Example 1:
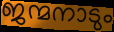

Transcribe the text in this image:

ജന്മനാടും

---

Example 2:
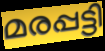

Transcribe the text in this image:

മരപ്പട്ടി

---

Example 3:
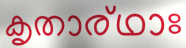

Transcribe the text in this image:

കൃതാര്ഥാഃ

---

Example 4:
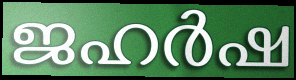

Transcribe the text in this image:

ജഹർഷ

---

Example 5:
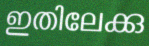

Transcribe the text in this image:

ഇതിലേക്കു